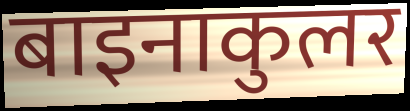
बाइनाकुलर